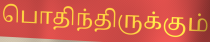
பொதிந்திருக்கும்